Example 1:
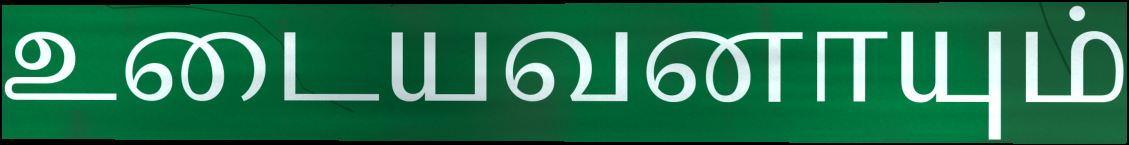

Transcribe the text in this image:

உடையவனாயும்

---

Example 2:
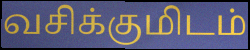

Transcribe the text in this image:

வசிக்குமிடம்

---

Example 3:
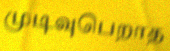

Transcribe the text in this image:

முடிவுபெறாத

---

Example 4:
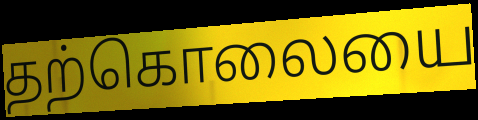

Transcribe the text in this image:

தற்கொலையை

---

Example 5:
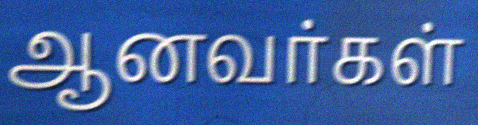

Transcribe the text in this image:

ஆனவர்கள்